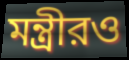
মন্ত্রীরও